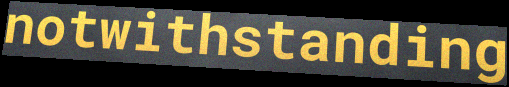
notwithstanding